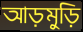
আড়মুড়ি